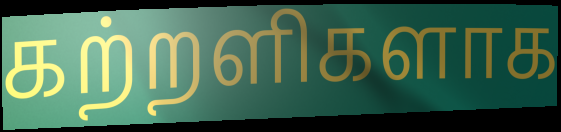
கற்றளிகளாக